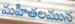
మహీతలమున